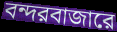
বন্দরবাজারে